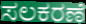
ಸಲಕರಣೆ